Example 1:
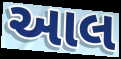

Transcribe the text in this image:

આલ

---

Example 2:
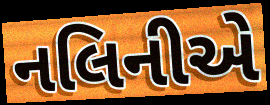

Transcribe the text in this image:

નલિનીએ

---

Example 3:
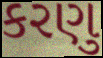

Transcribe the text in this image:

કરણુ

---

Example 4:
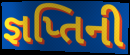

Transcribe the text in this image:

જ્ઞપ્તિની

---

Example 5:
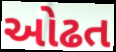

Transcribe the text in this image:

ઓઢત